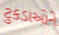
ટુકડાઓને